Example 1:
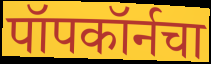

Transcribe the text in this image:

पॉपकॉर्नचा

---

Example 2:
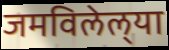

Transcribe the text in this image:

जमविलेल्या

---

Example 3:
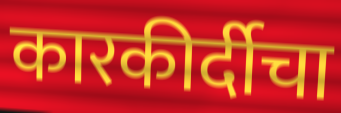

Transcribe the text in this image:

कारकीर्दीचा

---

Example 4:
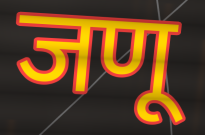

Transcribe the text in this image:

जणू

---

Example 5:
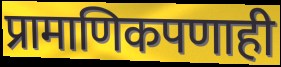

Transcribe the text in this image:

प्रामाणिकपणाही